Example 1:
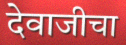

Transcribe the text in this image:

देवाजीचा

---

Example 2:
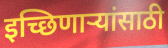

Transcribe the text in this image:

इच्छिणाऱ्यांसाठी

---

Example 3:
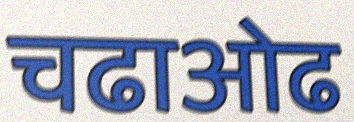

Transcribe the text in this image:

चढाओढ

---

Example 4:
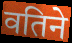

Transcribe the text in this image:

वतिने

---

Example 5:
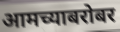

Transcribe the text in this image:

आमच्याबरोबर